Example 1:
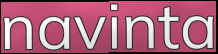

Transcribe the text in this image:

navinta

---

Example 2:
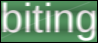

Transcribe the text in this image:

biting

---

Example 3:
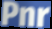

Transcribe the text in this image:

Pnr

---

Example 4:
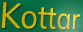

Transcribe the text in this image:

Kottar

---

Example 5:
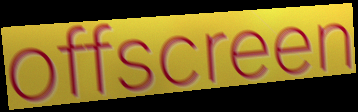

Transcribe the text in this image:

offscreen